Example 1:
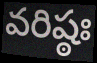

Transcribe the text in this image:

వరిష్ఠః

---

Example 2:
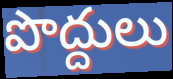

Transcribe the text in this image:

పొద్దులు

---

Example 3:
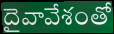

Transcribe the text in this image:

దైవావేశంతో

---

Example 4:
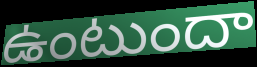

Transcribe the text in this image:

ఉంటుందా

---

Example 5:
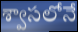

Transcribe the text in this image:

శ్వాసలోనే